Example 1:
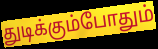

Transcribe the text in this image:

துடிக்கும்போதும்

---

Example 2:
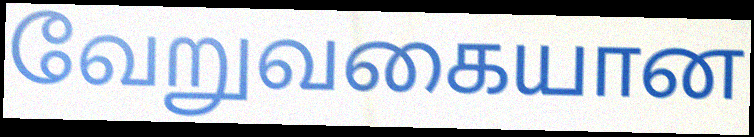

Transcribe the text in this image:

வேறுவகையான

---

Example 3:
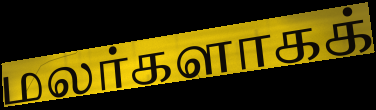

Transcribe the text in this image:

மலர்களாகக்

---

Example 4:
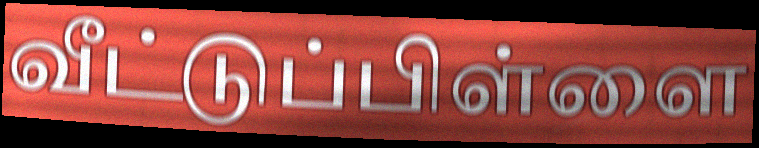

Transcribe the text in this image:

வீட்டுப்பிள்ளை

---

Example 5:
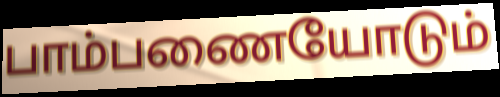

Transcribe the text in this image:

பாம்பணையோடும்